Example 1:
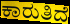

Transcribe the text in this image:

ಕಾರುತಿದೆ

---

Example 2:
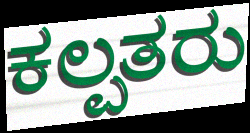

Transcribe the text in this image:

ಕಲ್ಪತರು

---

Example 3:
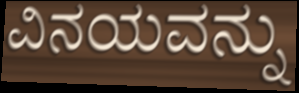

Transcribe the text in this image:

ವಿನಯವನ್ನು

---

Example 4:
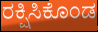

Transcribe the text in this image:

ರಕ್ಷಿಸಿಕೊಂಡ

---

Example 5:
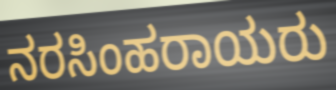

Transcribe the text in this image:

ನರಸಿಂಹರಾಯರು